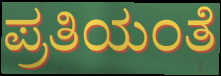
ಪ್ರತಿಯಂತೆ